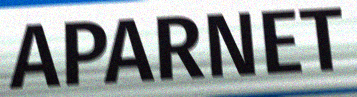
APARNET